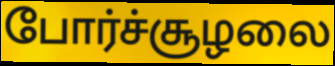
போர்ச்சூழலை